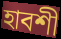
হাবশী